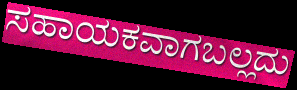
ಸಹಾಯಕವಾಗಬಲ್ಲದು